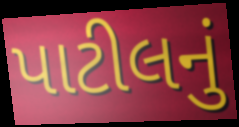
પાટીલનું